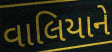
વાલિયાને